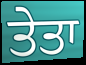
ਤੇਤਾ